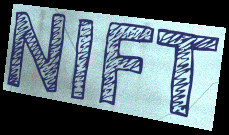
NIFT